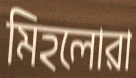
মিহলোৱা